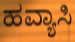
ಹವ್ಯಾಸಿ